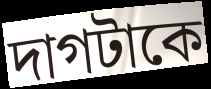
দাগটাকে